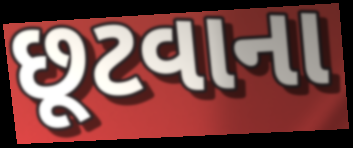
છૂટવાના